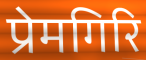
प्रेमगिरि